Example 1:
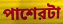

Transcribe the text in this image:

পাশেরটা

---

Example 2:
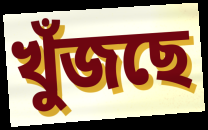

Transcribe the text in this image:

খুঁজছে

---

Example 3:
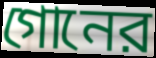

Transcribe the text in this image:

গোনের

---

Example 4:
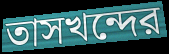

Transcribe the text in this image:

তাসখন্দের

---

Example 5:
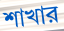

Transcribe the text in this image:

শাখার